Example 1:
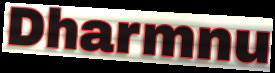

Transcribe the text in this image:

Dharmnu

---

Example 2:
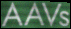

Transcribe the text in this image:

AAVs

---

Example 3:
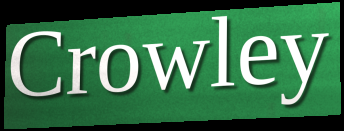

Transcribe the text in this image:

Crowley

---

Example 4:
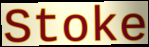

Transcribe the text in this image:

Stoke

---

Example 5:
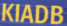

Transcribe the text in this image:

KIADB